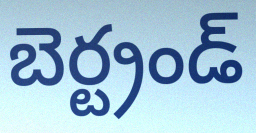
బెర్ట్రండ్